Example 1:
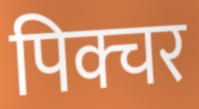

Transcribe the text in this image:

पिक्चर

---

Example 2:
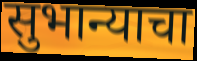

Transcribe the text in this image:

सुभान्याचा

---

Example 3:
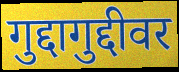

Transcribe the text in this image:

गुद्दागुद्दीवर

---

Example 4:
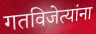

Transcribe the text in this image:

गतविजेत्यांना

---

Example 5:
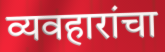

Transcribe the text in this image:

व्यवहारांचा